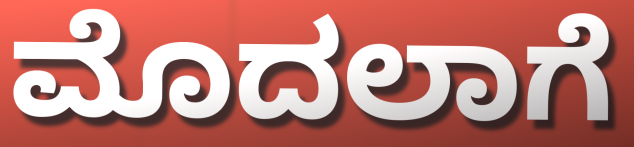
ಮೊದಲಾಗೆ